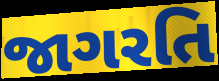
જાગરતિ